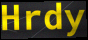
Hrdy